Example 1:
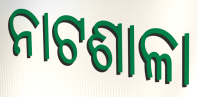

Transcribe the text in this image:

ନାଟଶାଳା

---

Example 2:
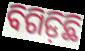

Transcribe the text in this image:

ବିଗିଡ଼ିଛି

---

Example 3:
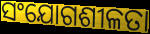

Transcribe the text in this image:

ସଂଯୋଗଶୀଳତା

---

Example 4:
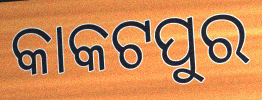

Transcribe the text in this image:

କାକଟପୁର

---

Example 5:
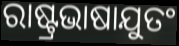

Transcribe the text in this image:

ରାଷ୍ଟ୍ରଭାଷାଯୁତଂ